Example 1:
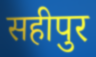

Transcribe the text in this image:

सहीपुर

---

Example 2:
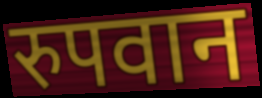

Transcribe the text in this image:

रुपवान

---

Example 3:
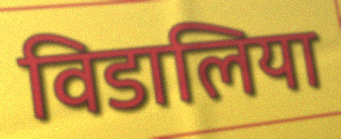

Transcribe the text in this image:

विडालिया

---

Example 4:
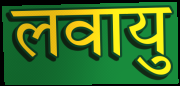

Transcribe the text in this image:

लवायु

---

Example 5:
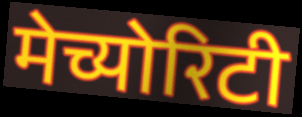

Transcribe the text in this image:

मेच्योरिटी